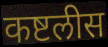
कष्टलीस